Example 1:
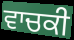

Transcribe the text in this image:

ਵਾਚਕੀ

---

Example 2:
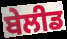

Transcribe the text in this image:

ਬੇਲੀਡ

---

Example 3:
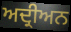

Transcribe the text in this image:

ਅਦ੍ਰੀਅਨ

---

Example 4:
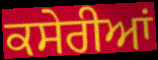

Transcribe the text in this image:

ਕਸੇਰੀਆਂ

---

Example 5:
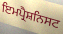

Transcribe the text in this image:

ਇਮਪ੍ਰੈਸ਼ਨਿਸਟ